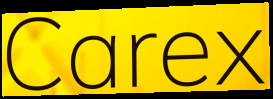
Carex